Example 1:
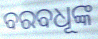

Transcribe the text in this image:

ବରବଧୂଙ୍କ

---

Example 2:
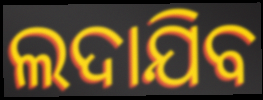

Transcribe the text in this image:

ଲଦାଯିବ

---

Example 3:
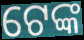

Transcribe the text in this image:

ଟେଙ୍କ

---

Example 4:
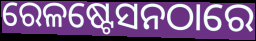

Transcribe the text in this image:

ରେଳଷ୍ଟେସନଠାରେ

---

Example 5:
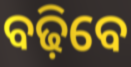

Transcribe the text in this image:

ବଢ଼ିବେ